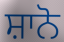
ਸ਼ਾਨੋ